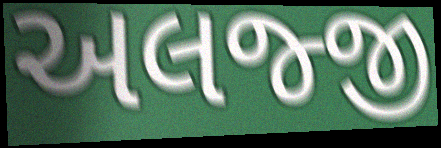
અલજ્જી